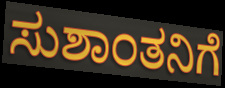
ಸುಶಾಂತನಿಗೆ